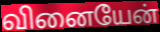
வினையேன்